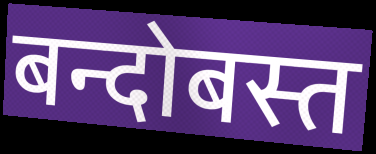
बन्दोबस्त